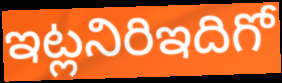
ఇట్లనిరిఇదిగో